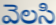
వెలసి